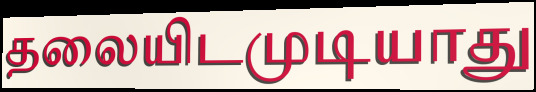
தலையிடமுடியாது